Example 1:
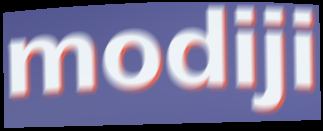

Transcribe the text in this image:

modiji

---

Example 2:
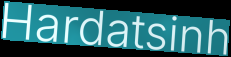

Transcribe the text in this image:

Hardatsinh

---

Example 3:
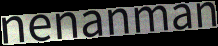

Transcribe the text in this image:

nenanman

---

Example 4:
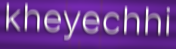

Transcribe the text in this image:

kheyechhi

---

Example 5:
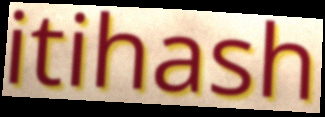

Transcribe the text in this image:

itihash